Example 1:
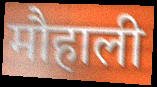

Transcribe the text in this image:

मौहाली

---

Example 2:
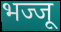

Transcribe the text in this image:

भज्जू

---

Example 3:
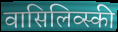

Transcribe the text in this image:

वासिलिव्स्की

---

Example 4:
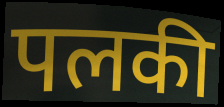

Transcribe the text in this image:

पलकी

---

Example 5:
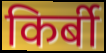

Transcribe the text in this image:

किर्बी